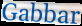
Gabbar